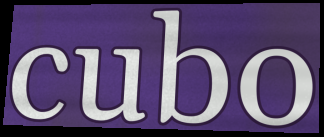
cubo